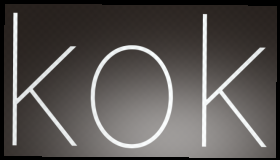
kok